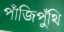
পাঁজিপুঁথি